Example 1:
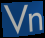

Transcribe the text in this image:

Vn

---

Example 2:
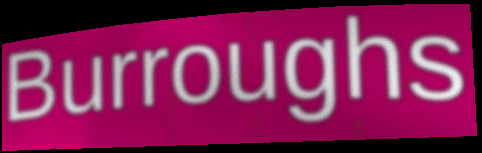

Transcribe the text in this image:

Burroughs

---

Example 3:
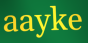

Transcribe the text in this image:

aayke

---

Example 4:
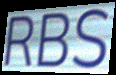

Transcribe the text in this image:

RBS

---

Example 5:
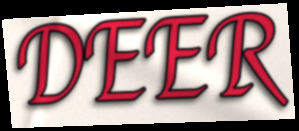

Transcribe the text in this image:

DEER